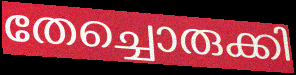
തേച്ചൊരുക്കി